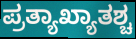
ಪ್ರತ್ಯಾಖ್ಯಾತಶ್ಚ